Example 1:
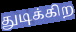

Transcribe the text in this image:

துடிக்கிற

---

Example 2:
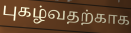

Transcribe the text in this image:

புகழ்வதற்காக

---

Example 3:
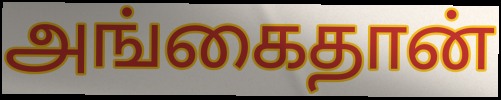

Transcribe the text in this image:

அங்கைதான்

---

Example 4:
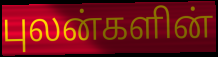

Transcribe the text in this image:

புலன்களின்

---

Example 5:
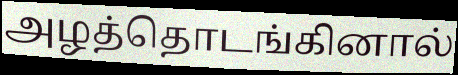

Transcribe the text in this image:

அழத்தொடங்கினால்